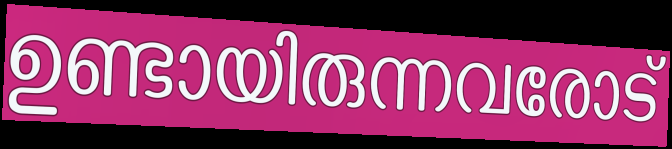
ഉണ്ടായിരുന്നവരോട്